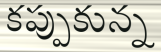
కప్పుకున్న